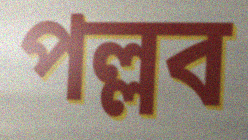
পল্লব